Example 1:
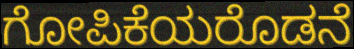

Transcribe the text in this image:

ಗೋಪಿಕೆಯರೊಡನೆ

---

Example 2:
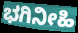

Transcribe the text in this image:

ಭಗಿನೀಹಿ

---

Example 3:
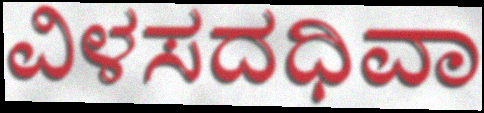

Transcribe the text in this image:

ವಿಳಸದಧಿವಾ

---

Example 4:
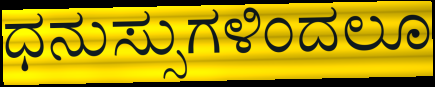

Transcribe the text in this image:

ಧನುಸ್ಸುಗಳಿಂದಲೂ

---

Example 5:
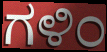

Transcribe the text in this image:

ಗಳಿಂ